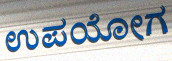
ಉಪಯೋಗ